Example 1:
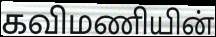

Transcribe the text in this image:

கவிமணியின்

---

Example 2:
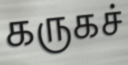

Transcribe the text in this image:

கருகச்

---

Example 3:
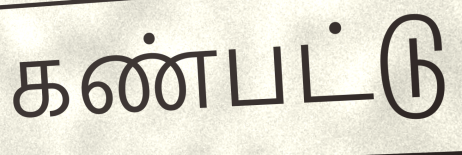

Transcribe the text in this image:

கண்பட்டு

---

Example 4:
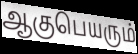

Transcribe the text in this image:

ஆகுபெயரும்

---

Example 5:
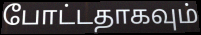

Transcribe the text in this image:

போட்டதாகவும்